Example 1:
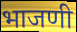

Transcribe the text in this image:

भाजणी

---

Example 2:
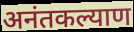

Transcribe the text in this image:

अनंतकल्याण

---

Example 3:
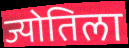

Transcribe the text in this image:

ज्योतिला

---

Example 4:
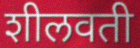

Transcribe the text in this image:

शीलवती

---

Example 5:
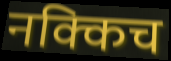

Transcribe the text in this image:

नक्किच